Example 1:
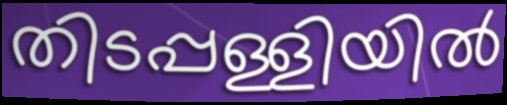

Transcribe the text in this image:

തിടപ്പള്ളിയിൽ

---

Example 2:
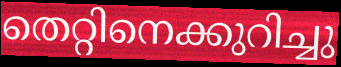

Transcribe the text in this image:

തെറ്റിനെക്കുറിച്ചു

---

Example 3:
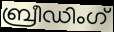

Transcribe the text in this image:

ബ്രീഡിംഗ്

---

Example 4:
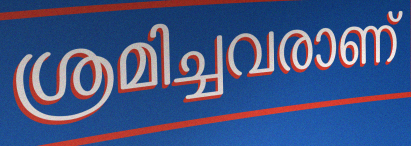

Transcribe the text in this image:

ശ്രമിച്ചവരാണ്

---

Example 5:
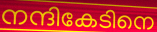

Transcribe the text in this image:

നന്ദികേടിനെ